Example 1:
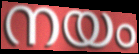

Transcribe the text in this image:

നയം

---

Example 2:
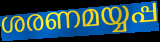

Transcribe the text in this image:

ശരണമയ്യപ്പ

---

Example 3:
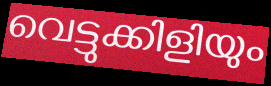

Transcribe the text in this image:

വെട്ടുക്കിളിയും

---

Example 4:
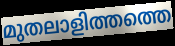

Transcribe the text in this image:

മുതലാളിത്തത്തെ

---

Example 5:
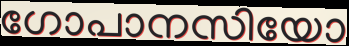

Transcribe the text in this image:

ഗോപാനസിയോ